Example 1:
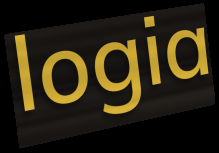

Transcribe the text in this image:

logia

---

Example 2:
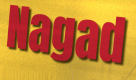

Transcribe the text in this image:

Nagad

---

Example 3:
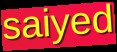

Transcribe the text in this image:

saiyed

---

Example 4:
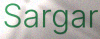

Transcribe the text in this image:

Sargar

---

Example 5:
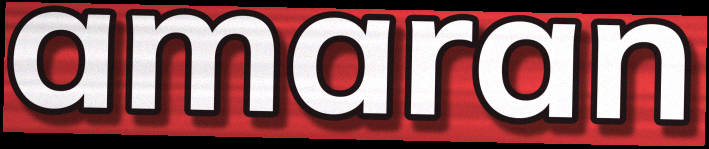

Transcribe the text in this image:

amaran